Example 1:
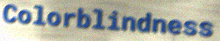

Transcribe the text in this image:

Colorblindness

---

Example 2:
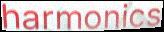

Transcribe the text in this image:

harmonics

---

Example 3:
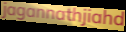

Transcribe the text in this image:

jagannathjiahd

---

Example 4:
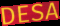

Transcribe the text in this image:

DESA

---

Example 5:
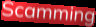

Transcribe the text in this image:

Scamming